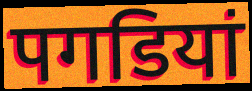
पगडियां